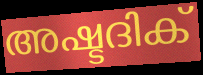
അഷ്ടദിക്